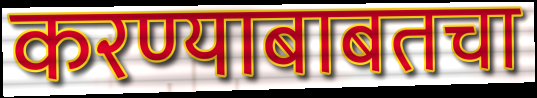
करण्याबाबतचा